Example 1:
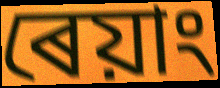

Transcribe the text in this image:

ৰেয়াং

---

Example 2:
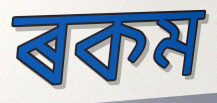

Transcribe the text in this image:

ৰকম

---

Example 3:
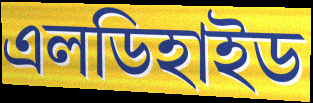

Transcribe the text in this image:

এলডিহাইড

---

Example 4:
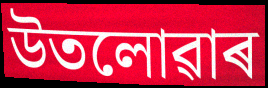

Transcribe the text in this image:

উতলোৱাৰ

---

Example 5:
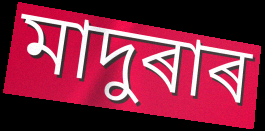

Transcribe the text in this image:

মাদুৰাৰ